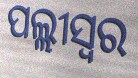
ପଲ୍ଲୀସ୍ଵର